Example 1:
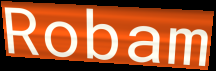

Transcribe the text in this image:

Robam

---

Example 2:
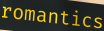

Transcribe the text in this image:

romantics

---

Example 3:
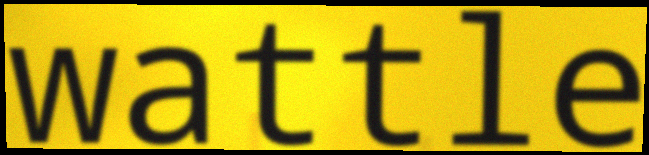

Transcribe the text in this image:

wattle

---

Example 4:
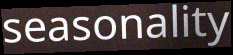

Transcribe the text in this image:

seasonality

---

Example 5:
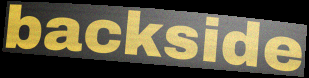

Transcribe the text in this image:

backside